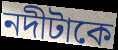
নদীটাকে